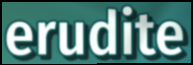
erudite